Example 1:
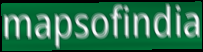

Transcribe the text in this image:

mapsofindia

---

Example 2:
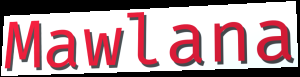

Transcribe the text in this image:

Mawlana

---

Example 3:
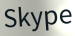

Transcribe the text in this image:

Skype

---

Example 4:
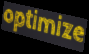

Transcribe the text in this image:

optimize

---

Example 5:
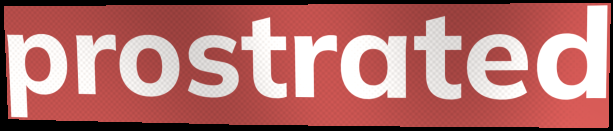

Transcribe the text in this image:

prostrated